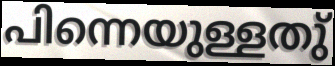
പിന്നെയുള്ളതു്